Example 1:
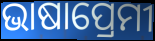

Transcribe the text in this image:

ଭାଷାପ୍ରେମୀ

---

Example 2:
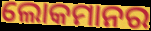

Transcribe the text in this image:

ଲୋକମାନର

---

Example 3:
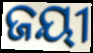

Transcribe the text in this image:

ଜୟୀ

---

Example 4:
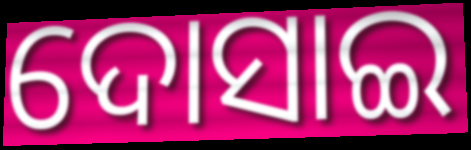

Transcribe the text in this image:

ଦୋସାଇ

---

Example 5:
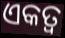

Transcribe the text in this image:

ଏକତ୍ୱ